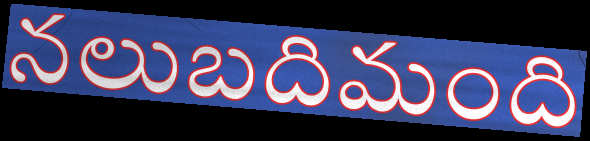
నలుబదిమంది